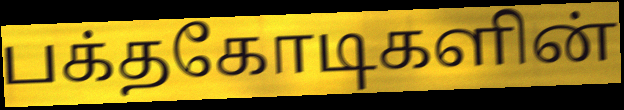
பக்தகோடிகளின்